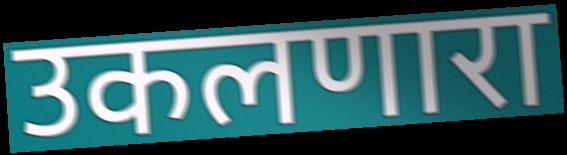
उकलणारा